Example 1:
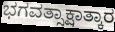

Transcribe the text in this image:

ಭಗವತ್ಸಾಕ್ಷಾತ್ಕಾರ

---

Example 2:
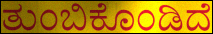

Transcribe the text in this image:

ತುಂಬಿಕೊಂಡಿದೆ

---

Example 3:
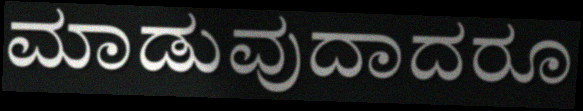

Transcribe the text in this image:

ಮಾಡುವುದಾದರೂ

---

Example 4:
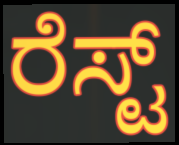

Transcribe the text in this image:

ರೆಸ್ಟ್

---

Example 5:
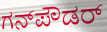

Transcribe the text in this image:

ಗನ್‌ಪೌಡರ್